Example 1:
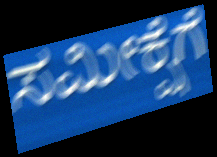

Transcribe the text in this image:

ಸಮೀಕ್ಷೆಗೆ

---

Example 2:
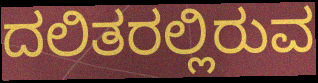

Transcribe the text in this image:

ದಲಿತರಲ್ಲಿರುವ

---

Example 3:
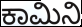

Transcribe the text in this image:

ಕಾಮಿನಿ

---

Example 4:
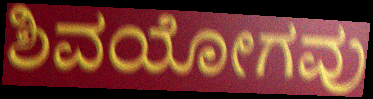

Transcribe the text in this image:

ಶಿವಯೋಗವು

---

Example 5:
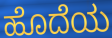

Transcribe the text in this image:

ಹೊದೆಯ